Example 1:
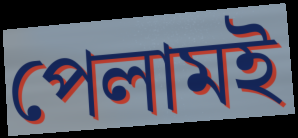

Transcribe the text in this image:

পেলামই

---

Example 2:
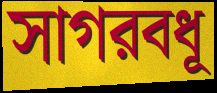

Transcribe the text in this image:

সাগরবধূ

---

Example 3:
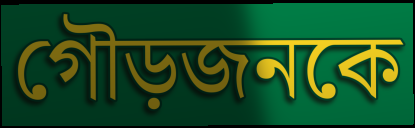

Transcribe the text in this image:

গৌড়জনকে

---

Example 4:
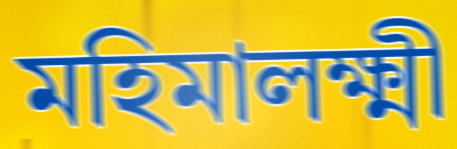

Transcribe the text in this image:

মহিমালক্ষ্মী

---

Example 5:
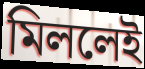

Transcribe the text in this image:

মিললেই